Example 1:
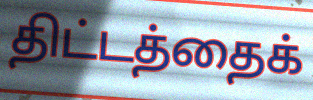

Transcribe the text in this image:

திட்டத்தைக்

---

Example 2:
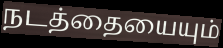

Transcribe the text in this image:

நடத்தையையும்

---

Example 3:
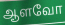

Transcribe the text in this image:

ஆளவோ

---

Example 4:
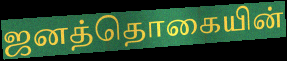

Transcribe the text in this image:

ஜனத்தொகையின்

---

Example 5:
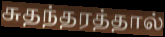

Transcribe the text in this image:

சுதந்தரத்தால்